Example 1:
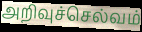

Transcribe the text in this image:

அறிவுச்செல்வம்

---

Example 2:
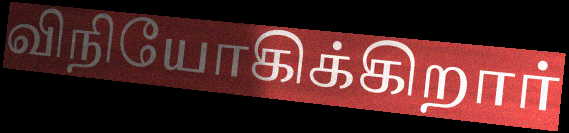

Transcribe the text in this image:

விநியோகிக்கிறார்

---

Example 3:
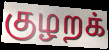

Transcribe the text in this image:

குழறக்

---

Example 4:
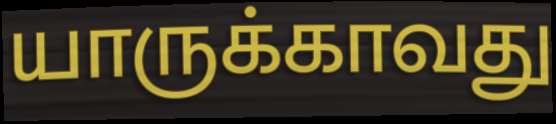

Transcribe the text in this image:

யாருக்காவது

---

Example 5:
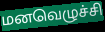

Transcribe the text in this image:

மனவெழுச்சி